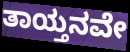
ತಾಯ್ತನವೇ